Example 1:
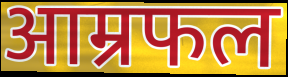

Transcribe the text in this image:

आम्रफल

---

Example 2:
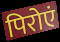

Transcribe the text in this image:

पिरोएं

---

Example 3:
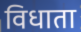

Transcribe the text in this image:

विधाता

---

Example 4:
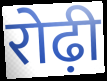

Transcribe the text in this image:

रोढ़ी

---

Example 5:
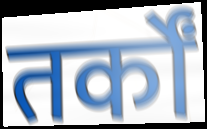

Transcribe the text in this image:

तर्कों